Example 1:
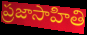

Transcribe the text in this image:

ప్రజాసాహితి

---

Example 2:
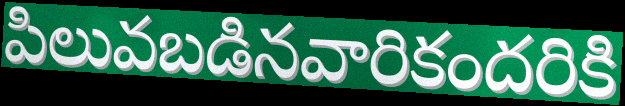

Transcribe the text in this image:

పిలువబడినవారికందరికి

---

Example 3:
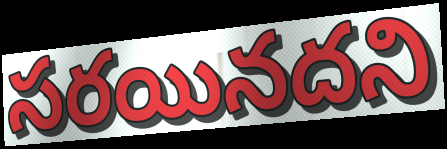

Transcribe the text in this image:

సరయినదని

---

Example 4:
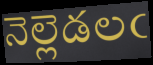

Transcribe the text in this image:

నెల్లెడలఁ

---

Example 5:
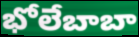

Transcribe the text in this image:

భోలేబాబా